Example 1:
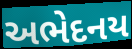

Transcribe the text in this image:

અભેદનય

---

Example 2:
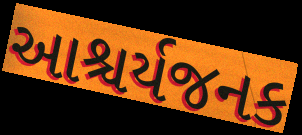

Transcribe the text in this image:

આશ્ચર્યજનક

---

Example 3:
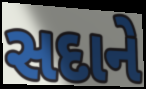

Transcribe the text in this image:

સદાને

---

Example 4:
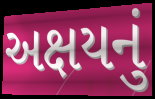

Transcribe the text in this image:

અક્ષયનું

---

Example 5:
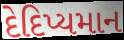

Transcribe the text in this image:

દેદિપ્યમાન